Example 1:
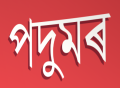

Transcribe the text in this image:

পদুমৰ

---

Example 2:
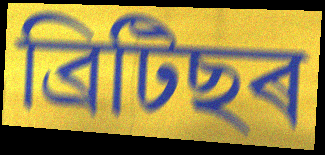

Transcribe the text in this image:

ব্ৰিটিছৰ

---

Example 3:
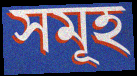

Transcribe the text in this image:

সমূহ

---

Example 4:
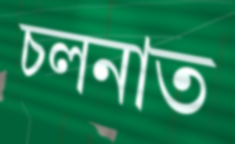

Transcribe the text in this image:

চলনাত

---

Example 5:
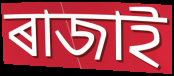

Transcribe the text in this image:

ৰাজাই